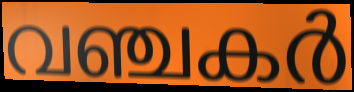
വഞ്ചകർ